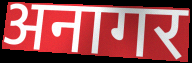
अनागर